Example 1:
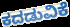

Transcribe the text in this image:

ಕದಡುವಿಕೆ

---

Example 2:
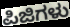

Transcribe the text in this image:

ಪಿಜಿಗಳು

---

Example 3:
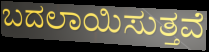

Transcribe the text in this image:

ಬದಲಾಯಿಸುತ್ತವೆ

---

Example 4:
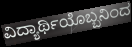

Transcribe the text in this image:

ವಿದ್ಯಾರ್ಥಿಯೊಬ್ಬನಿಂದ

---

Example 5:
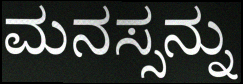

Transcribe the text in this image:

ಮನಸ್ಸನ್ನು